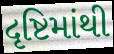
દૃષ્ટિમાંથી